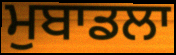
ਮੁਬਾਡਲਾ